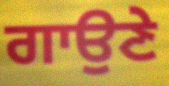
ਗਾਉਣੇ